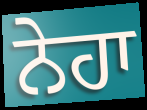
ਨੇਹਾ